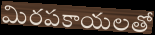
మిరపకాయలతో